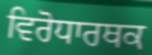
ਵਿਰੋਧਾਰਥਕ